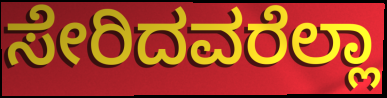
ಸೇರಿದವರೆಲ್ಲಾ